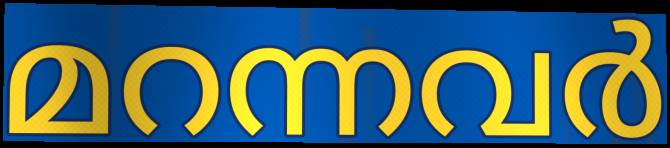
മറന്നവർ